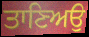
ਤਾਣਿਅਉ